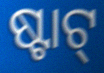
ଷ୍ଟାଟ୍